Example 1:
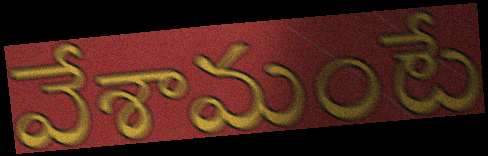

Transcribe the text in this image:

వేశామంటే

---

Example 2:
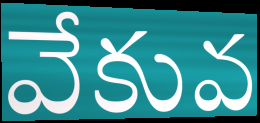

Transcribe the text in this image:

వేకువ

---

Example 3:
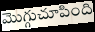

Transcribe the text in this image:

మొగ్గుచూపింది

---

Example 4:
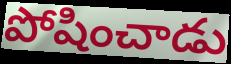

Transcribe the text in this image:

పోషించాడు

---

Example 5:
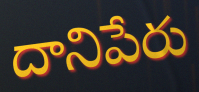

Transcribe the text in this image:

దానిపేరు